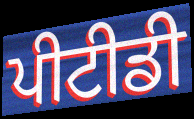
ਪੀਟੀਡੀ